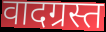
वादग्रस्त